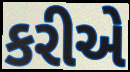
કરીએ